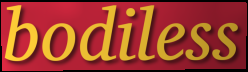
bodiless